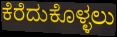
ಕೆರೆದುಕೊಳ್ಳಲು